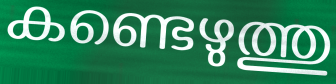
കണ്ടെഴുത്തു